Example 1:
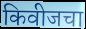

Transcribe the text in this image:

किवीजचा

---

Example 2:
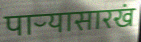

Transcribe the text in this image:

पाऱ्यासारखं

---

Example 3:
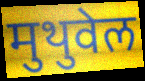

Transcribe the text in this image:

मुथुवेल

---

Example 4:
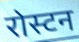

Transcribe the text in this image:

रोस्टन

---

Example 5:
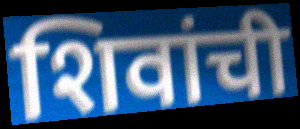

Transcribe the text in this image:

शिवांची